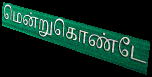
மென்றுகொண்டே